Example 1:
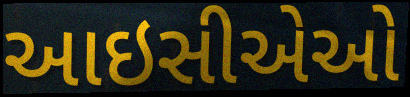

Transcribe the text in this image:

આઇસીએઓ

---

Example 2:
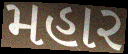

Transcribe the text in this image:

મહાર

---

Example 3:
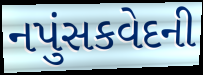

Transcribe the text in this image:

નપુંસકવેદની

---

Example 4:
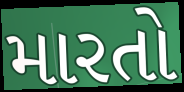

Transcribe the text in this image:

મારતો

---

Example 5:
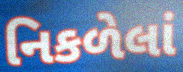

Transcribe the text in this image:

નિકળેલાં